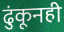
ढुंकूनही